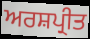
ਅਰਸ਼ਪ੍ਰੀਤ